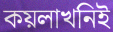
কয়লাখনিই